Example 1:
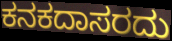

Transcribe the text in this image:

ಕನಕದಾಸರದು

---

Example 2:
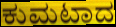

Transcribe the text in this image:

ಕುಮಟಾದ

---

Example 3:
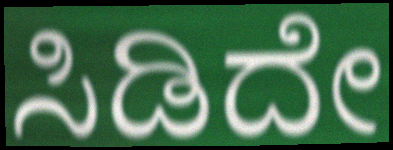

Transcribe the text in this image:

ಸಿಡಿದೇ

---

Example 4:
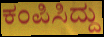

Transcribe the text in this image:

ಕಂಪಿಸಿದ್ದು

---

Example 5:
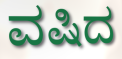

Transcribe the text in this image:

ವಷಿದ